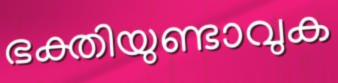
ഭക്തിയുണ്ടാവുക